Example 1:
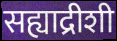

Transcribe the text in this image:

सह्याद्रीशी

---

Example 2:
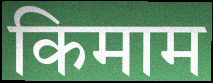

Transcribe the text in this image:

किमाम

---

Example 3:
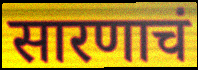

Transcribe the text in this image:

सारणाचं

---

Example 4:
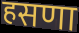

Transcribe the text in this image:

हसणा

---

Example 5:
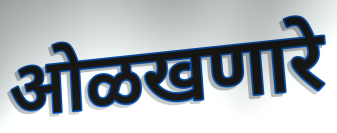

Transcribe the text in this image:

ओळखणारे